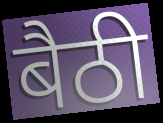
बैठी